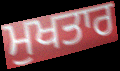
ਮੁਖਤਾਰ